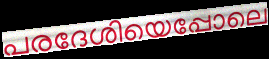
പരദേശിയെപ്പോലെ